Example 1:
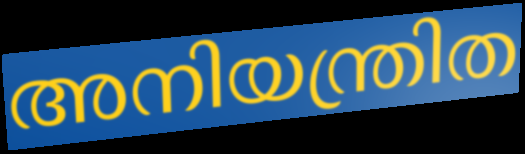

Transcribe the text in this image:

അനിയന്ത്രിത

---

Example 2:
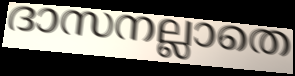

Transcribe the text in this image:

ദാസനല്ലാതെ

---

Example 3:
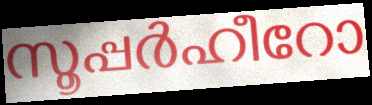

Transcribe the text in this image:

സൂപ്പർഹീറോ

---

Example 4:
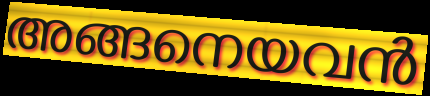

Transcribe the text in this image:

അങ്ങനെയവൻ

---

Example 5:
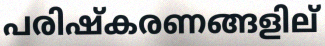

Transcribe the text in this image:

പരിഷ്കരണങ്ങളില്